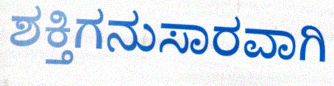
ಶಕ್ತಿಗನುಸಾರವಾಗಿ